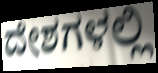
ದೇಶಗಳಲ್ಲಿ